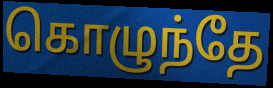
கொழுந்தே